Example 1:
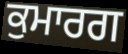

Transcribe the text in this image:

ਕੁਮਾਰਗ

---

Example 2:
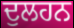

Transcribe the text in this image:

ਦੁਲਹਨ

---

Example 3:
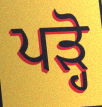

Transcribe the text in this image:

ਪੜ੍ਹੋ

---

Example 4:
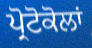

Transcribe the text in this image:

ਪ੍ਰੋਟੋਕੋਲਾਂ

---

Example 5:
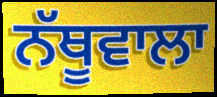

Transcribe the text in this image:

ਨੱਥੂਵਾਲਾ